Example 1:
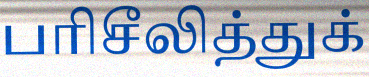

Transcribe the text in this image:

பரிசீலித்துக்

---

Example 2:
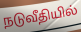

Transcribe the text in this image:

நடுவீதியில்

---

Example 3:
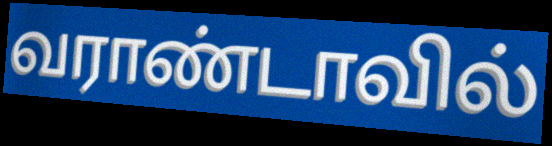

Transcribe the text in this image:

வராண்டாவில்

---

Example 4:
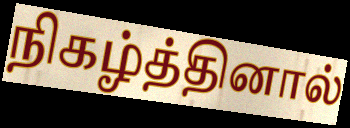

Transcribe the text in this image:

நிகழ்த்தினால்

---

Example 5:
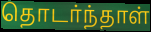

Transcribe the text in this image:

தொடர்ந்தாள்